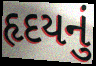
હૃદયનું